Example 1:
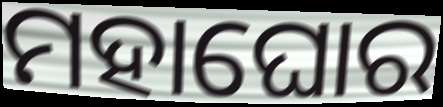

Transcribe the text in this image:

ମହାଘୋର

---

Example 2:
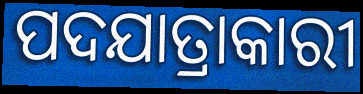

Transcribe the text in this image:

ପଦଯାତ୍ରାକାରୀ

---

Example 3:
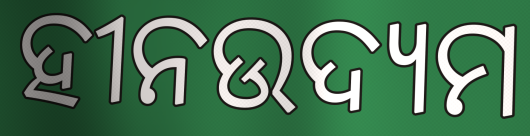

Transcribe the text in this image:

ହୀନଉଦ୍ୟମ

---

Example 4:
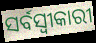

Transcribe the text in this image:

ସର୍ବସ୍ଵୀକାରୀ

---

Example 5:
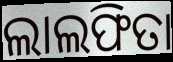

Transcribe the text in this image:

ଲାଲଫିତା